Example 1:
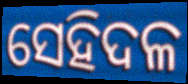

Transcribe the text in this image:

ସେହିଦଳ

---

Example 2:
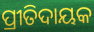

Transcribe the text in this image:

ପ୍ରୀତିଦାୟକ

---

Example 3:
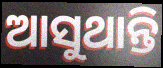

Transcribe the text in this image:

ଆସୁଥାନ୍ତି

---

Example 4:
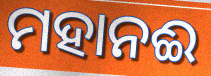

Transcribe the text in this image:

ମହାନଈ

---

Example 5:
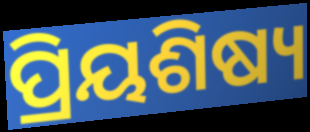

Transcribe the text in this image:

ପ୍ରିୟଶିଷ୍ୟ